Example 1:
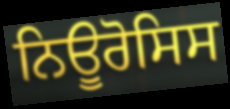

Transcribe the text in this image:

ਨਿਊਰੋਸਿਸ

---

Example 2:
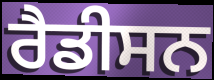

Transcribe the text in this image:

ਰੈਡੀਸਨ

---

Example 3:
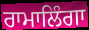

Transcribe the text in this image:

ਰਾਮਾਲਿੰਗਾ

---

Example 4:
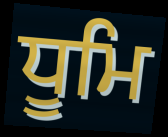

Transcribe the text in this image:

ਧੂਮਿ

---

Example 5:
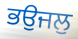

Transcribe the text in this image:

ਭਉਜਲੁ